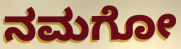
ನಮಗೋ